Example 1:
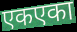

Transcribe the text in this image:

एकएका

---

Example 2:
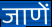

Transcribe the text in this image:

जाणें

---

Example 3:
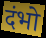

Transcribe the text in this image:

दंभो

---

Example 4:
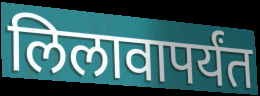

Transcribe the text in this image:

लिलावापर्यंत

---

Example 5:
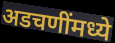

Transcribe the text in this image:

अडचणींमध्ये